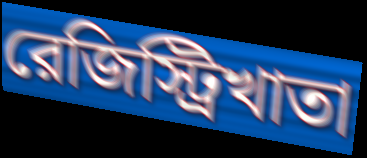
রেজিস্ট্রিখাতা